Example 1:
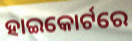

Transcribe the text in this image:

ହାଇକୋର୍ଟରେ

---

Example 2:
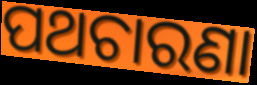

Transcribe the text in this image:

ପଥଚାରଣା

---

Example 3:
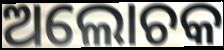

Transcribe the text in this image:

ଅଲୋଚକ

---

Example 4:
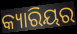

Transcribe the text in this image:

କ୍ୟାରିୟର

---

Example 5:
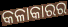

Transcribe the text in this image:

କଳାକାରର